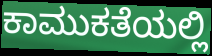
ಕಾಮುಕತೆಯಲ್ಲಿ